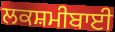
ਲਕਸ਼ਮੀਬਾਈ